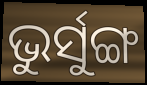
ଭୁର୍ସୁଙ୍ଗ